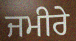
ਜਮੀਰੇ